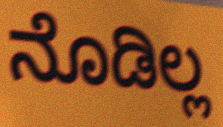
ನೊಡಿಲ್ಲ